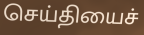
செய்தியைச்